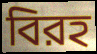
বিরহ